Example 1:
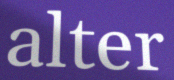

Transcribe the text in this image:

alter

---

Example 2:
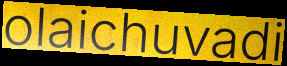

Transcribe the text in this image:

olaichuvadi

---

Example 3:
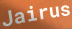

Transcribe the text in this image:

Jairus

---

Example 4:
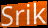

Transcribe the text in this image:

Srik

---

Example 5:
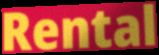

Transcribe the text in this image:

Rental